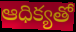
ఆధిక్యతో